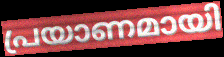
പ്രയാണമായി